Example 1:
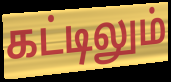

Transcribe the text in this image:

கட்டிலும்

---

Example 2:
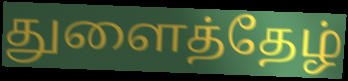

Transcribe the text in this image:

துளைத்தேழ்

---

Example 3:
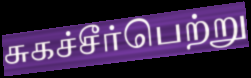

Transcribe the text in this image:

சுகச்சீர்பெற்று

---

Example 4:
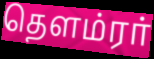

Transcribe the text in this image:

தௌம்ரர்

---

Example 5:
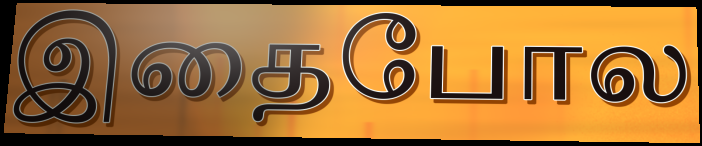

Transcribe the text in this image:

இதைபோல